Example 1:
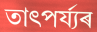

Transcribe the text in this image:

তাৎপৰ্য্যৰ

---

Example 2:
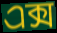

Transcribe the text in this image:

এক্স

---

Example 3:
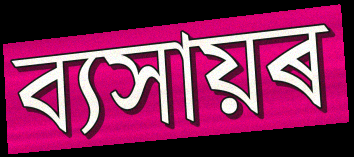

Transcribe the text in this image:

ব্যসায়ৰ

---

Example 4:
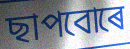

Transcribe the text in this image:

ছাপবোৰে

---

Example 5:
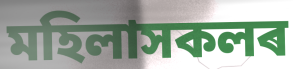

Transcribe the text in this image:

মহিলাসকলৰ